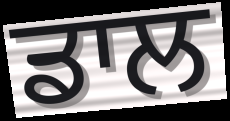
ਡਾਲ